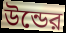
উন্ডের